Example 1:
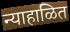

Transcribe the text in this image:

न्याहाळित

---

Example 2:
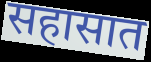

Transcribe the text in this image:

सहासात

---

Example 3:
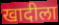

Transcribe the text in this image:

खादीला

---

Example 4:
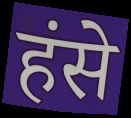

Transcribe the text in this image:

हंसे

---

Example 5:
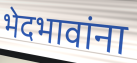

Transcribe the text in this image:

भेदभावांना